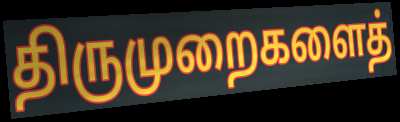
திருமுறைகளைத்